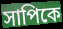
সাপিকে